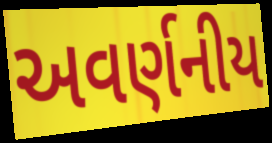
અવર્ણનીય